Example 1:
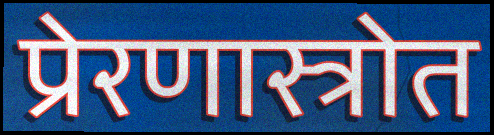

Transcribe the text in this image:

प्रेरणास्त्रोत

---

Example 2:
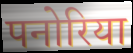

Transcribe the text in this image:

पनोरिया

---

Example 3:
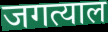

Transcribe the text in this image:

जगत्याल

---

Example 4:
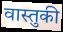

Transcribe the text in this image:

वास्तुकी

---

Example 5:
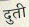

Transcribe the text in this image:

दुती